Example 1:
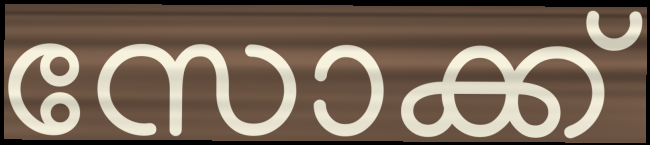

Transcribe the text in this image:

സോക്ക്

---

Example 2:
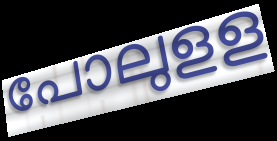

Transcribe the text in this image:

പോലുളള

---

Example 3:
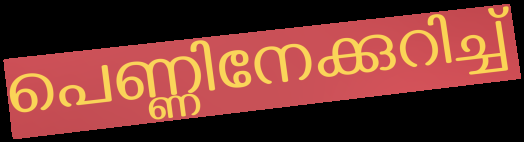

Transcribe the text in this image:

പെണ്ണിനേക്കുറിച്ച്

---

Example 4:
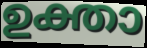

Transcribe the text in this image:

ഉക്താ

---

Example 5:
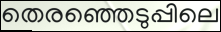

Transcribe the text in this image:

തെരഞ്ഞെടുപ്പിലെ